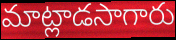
మాట్లాడసాగారు